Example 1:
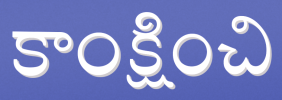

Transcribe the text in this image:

కాంక్షించి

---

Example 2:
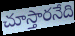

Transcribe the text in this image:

చూస్తారనేది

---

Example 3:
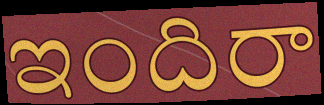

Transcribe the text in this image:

ఇందిరా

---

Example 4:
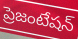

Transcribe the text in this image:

ప్రెజంటేషన్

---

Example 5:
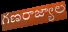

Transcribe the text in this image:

గణరాజ్యాల